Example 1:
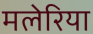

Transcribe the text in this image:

मलेरिया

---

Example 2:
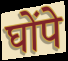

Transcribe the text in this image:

घोंपे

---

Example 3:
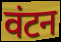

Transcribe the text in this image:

वंटन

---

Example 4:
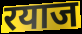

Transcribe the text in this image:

रयाज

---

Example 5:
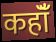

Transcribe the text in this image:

कहॉँ